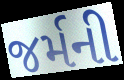
જર્મની